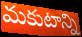
మకుటాన్ని